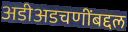
अडीअडचणींबद्दल